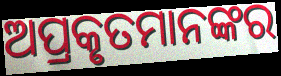
ଅପ୍ରକୃତମାନଙ୍କର